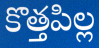
కొత్తపిల్ల